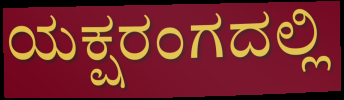
ಯಕ್ಷರಂಗದಲ್ಲಿ